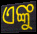
ଏଙ୍କୁ